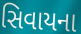
સિવાયના